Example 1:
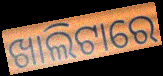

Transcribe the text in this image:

ଖାଲିଟାରେ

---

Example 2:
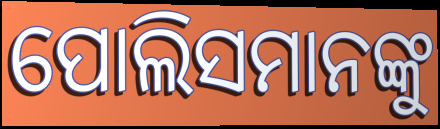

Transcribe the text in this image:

ପୋଲିସମାନଙ୍କୁ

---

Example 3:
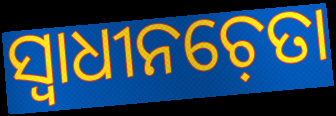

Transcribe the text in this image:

ସ୍ୱାଧୀନଚ଼େତା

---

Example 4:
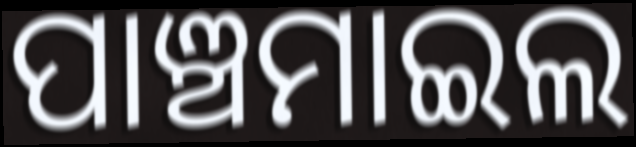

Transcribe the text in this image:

ପାଞ୍ଚମାଇଲ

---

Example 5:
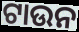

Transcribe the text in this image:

ଟାଉନ